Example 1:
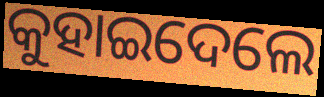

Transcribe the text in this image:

କୁହାଇଦେଲେ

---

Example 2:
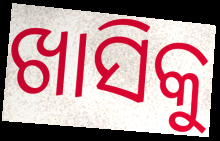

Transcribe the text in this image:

ଖାସିକୁ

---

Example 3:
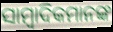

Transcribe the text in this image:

ସାମ୍ବାଦିକମାନଙ୍କ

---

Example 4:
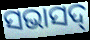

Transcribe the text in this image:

ସଭାସଦ୍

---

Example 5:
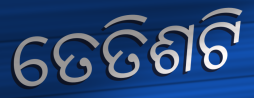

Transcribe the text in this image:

ତେତିଶଟି